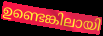
ഉണ്ടെങ്കിലായി